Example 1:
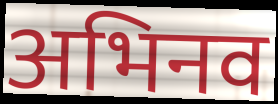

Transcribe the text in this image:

अभिनव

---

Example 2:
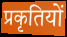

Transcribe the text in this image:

प्रकृतियों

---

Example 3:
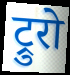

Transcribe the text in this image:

ट्रुरो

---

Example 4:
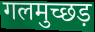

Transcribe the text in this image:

गलमुच्छड़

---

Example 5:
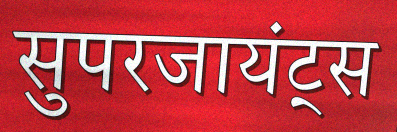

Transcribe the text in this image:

सुपरजायंट्स